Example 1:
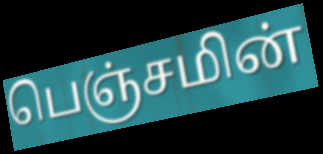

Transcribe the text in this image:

பெஞ்சமின்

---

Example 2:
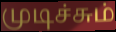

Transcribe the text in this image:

முடிச்சும்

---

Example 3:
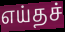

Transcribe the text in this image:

எய்தச்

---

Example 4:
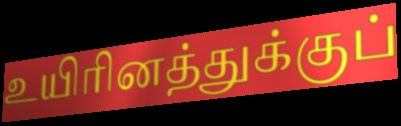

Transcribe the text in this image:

உயிரினத்துக்குப்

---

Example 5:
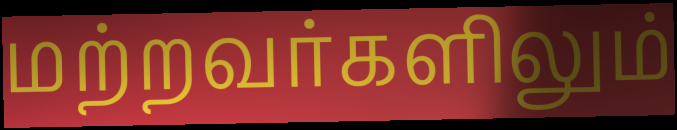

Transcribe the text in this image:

மற்றவர்களிலும்